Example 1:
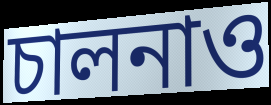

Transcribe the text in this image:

চালনাও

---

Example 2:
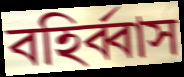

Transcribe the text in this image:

বহির্ব্বাস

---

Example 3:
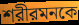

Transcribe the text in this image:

শরীরমনকে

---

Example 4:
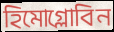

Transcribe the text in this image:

হিমোগ্লোবিন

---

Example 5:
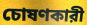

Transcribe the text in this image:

চোষণকারী